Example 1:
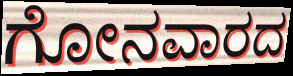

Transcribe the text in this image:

ಗೋನವಾರದ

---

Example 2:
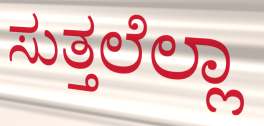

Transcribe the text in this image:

ಸುತ್ತಲೆಲ್ಲಾ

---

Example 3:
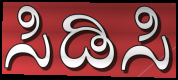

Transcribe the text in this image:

ಸಿಡಿಸಿ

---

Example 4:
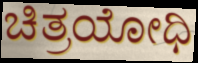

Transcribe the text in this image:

ಚಿತ್ರಯೋಧಿ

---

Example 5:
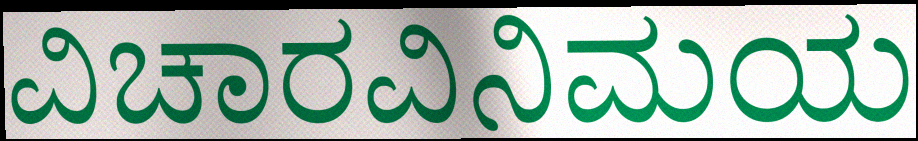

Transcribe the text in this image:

ವಿಚಾರವಿನಿಮಯ